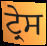
ਟ੍ਰੇਸ